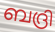
ബദ്രി